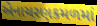
એનાચરણકમળમાં